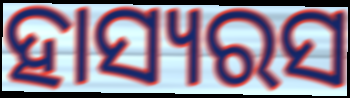
ହାସ୍ୟରସ